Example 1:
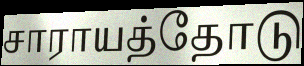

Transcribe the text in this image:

சாராயத்தோடு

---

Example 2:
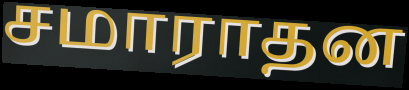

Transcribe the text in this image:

சமாராதன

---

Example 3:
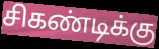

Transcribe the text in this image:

சிகண்டிக்கு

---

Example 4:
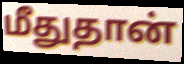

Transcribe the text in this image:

மீதுதான்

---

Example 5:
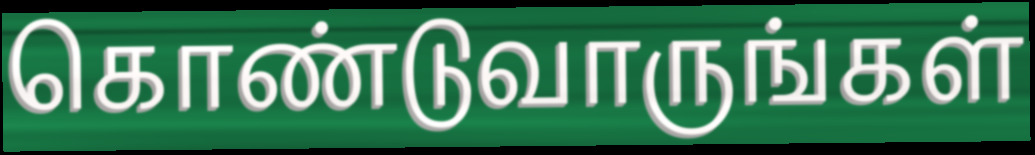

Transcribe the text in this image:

கொண்டுவாருங்கள்